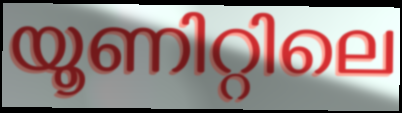
യൂണിറ്റിലെ